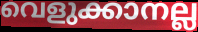
വെളുക്കാനല്ല